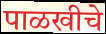
पाळखीचे